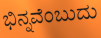
ಭಿನ್ನವೆಂಬುದು